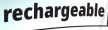
rechargeable